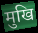
मुखि